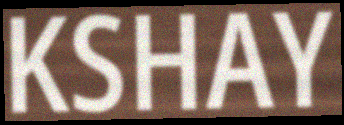
KSHAY